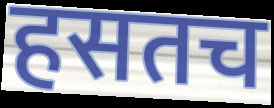
हसतच